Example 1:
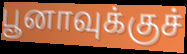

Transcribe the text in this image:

பூனாவுக்குச்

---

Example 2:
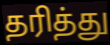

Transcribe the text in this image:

தரித்து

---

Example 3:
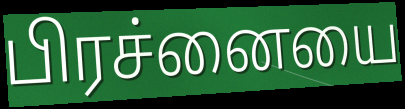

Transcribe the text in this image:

பிரச்னையை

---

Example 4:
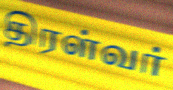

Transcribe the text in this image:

திரள்வர்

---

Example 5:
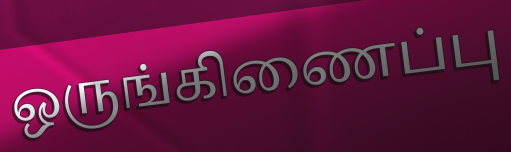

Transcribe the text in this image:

ஒருங்கிணைப்பு